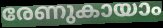
രേണുകായാം